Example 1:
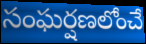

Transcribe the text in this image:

సంఘర్షణలోంచే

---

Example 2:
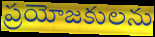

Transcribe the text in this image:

ప్రయోజకులను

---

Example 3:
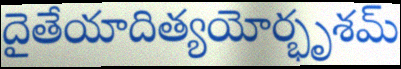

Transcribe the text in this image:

దైతేయాదిత్యయోర్భృశమ్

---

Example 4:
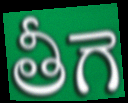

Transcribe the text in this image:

తీగె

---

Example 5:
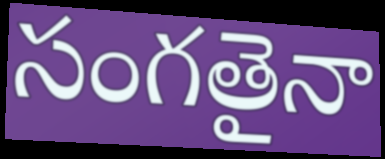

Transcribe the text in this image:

సంగతైనా